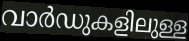
വാർഡുകളിലുള്ള